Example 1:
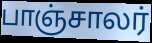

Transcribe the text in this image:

பாஞ்சாலர்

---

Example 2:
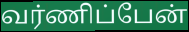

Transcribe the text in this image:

வர்ணிப்பேன்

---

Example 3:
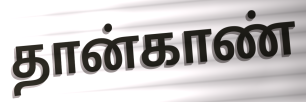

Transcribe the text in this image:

தான்காண்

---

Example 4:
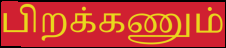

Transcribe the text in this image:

பிறக்கணும்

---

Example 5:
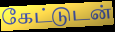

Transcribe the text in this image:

கேட்டுடன்